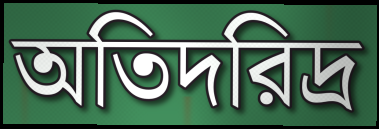
অতিদরিদ্র